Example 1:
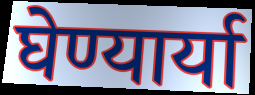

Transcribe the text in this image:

घेण्यार्या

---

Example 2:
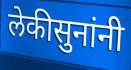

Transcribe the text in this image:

लेकीसुनांनी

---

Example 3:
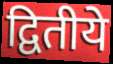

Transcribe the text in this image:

द्वितीये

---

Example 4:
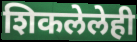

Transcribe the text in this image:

शिकलेलेही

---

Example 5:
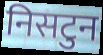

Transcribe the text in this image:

निसटुन